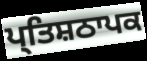
ਪ੍ਤਿਸ਼ਠਾਪਕ